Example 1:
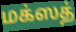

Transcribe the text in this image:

மக்ஸத்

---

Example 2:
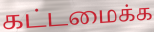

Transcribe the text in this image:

கட்டமைக்க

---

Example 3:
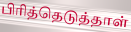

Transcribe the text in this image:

பிரித்தெடுத்தாள்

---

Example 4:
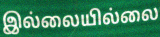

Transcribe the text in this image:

இல்லையில்லை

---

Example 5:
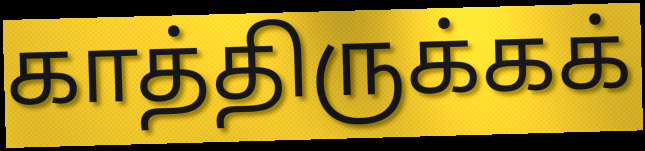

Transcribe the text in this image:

காத்திருக்கக்